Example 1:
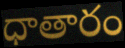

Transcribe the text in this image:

ధాతారం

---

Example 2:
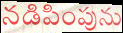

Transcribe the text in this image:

నడిపింపును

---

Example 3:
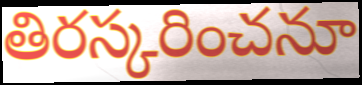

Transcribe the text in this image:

తిరస్కరించనూ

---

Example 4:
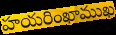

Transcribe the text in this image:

హయరింఖాముఖ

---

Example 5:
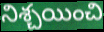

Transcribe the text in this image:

నిశ్చయించి